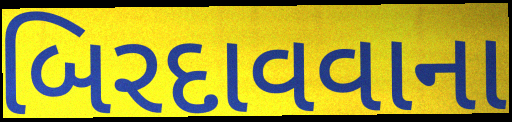
બિરદાવવાના